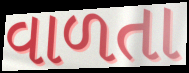
વાળતા